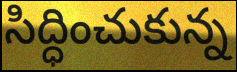
సిద్ధించుకున్న